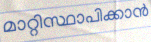
മാറ്റിസ്ഥാപിക്കാൻ